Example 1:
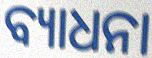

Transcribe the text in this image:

ବ୍ୟାଧନା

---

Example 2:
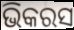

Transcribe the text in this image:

ଭିକରସ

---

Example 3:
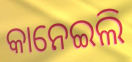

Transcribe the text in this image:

କାନେଇଲି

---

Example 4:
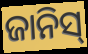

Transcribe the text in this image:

ଜାନିସ୍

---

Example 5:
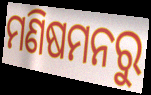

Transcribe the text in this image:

ମଣିଷମନରୁ